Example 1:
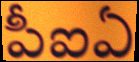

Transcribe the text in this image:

పీఐఏ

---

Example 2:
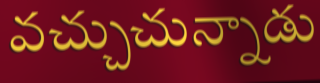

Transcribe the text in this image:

వచ్చుచున్నాడు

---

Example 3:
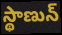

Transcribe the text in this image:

స్థాణున్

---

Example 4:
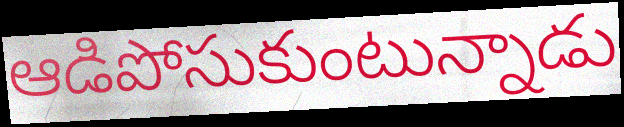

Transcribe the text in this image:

ఆడిపోసుకుంటున్నాడు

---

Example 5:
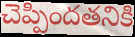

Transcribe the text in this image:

చెప్పిందతనికి